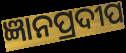
ଜ୍ଞାନପ୍ରଦୀପ